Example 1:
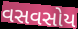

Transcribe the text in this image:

વસવસોય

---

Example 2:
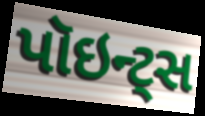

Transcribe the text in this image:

પૉઇન્ટ્સ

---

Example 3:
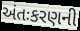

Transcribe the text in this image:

અંતઃકરણની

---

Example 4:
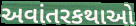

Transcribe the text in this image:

અવાંતરકથાઓ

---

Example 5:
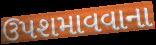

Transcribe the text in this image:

ઉપશમાવવાના